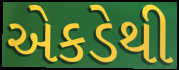
એકડેથી